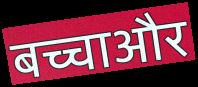
बच्चाऔर